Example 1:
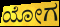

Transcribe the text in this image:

ಯೋಗ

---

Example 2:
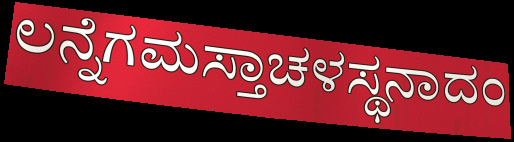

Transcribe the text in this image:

ಲನ್ನೆಗಮಸ್ತಾಚಳಸ್ಥನಾದಂ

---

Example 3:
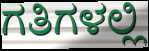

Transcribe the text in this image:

ಗತಿಗಳಲ್ಲಿ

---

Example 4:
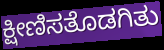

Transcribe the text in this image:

ಕ್ಷೀಣಿಸತೊಡಗಿತು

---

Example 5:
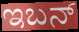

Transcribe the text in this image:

ಇಬನ್